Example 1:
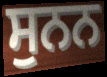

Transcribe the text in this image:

ਸੁਨਨ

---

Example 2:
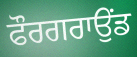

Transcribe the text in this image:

ਫੌਰਗਰਾਉਂਡ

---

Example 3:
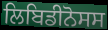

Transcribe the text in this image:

ਲਿਬਿਡੀਨੋਸਸ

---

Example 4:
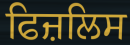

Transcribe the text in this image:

ਫਿਜ਼ਲਿਸ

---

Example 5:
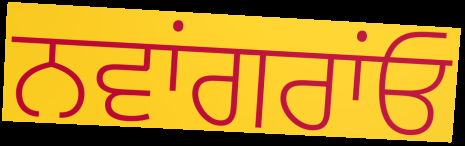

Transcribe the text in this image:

ਨਵਾਂਗਰਾਂਓ